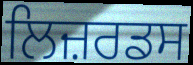
ਲਿਜ਼ਰਡਸ